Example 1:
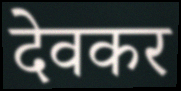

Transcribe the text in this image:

देवकर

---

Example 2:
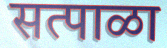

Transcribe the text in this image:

सत्पाळा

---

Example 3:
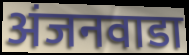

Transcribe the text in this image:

अंजनवाडा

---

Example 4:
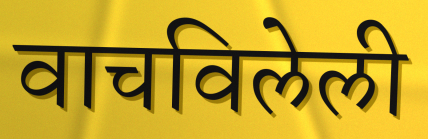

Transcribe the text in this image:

वाचविलेली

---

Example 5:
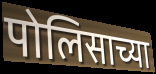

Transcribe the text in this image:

पोलिसाच्या